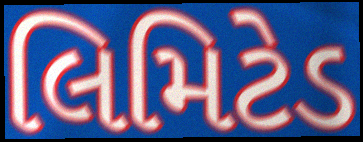
લિમિટેડ